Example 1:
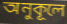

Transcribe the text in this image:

অনুকূলে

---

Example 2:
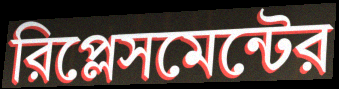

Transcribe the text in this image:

রিপ্লেসমেন্টের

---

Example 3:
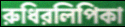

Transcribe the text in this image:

রুধিরলিপিকা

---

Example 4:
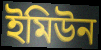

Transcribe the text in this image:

ইমিউন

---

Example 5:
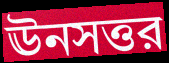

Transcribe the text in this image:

ঊনসত্তর